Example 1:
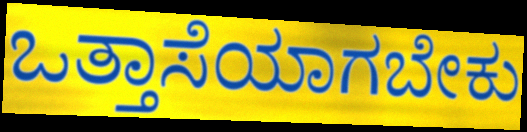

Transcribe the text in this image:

ಒತ್ತಾಸೆಯಾಗಬೇಕು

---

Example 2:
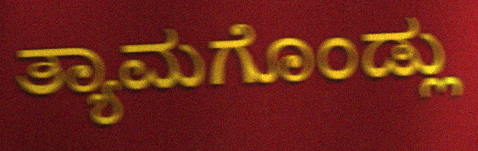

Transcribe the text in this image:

ತ್ಯಾಮಗೊಂಡ್ಲು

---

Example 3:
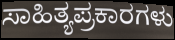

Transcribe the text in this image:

ಸಾಹಿತ್ಯಪ್ರಕಾರಗಳು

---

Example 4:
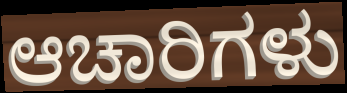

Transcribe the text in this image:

ಆಚಾರಿಗಳು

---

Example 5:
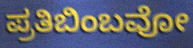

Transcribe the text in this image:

ಪ್ರತಿಬಿಂಬವೋ